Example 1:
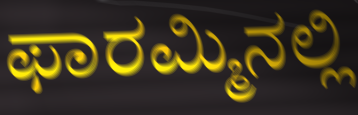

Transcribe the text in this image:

ಫಾರಮ್ಮಿನಲ್ಲಿ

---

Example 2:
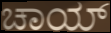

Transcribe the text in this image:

ಚಾಯ್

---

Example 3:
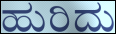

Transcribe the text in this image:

ಹುರಿದು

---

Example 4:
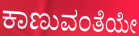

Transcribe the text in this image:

ಕಾಣುವಂತೆಯೇ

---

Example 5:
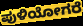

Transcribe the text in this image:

ಪುಳಿಯೋಗರೆ